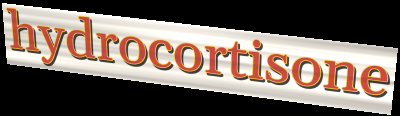
hydrocortisone